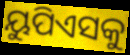
ୟୁପିଏସକୁ